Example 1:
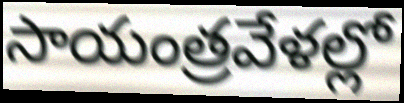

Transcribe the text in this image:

సాయంత్రవేళల్లో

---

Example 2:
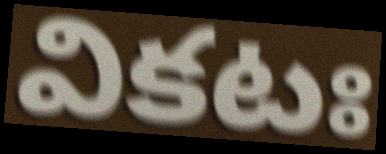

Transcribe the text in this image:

వికటః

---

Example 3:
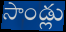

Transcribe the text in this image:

సాండ్లు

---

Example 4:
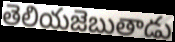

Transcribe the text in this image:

తెలియజెబుతాడు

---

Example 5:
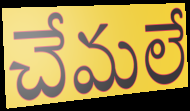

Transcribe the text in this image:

చేమలే